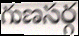
గుణసర్గ